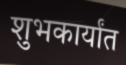
शुभकार्यांत